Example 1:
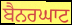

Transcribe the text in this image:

ਬੈਨਰਘਾਟ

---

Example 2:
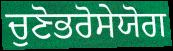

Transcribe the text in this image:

ਚੁਣੋਭਰੋਸੇਯੋਗ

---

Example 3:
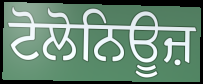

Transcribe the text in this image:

ਟੋਲੋਨਿਊਜ਼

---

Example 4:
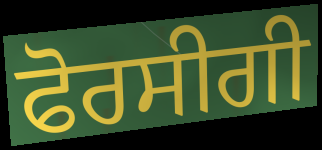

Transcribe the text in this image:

ਫੋਰਸੀਗੀ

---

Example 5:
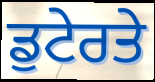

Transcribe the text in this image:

ਡੁਟੇਰਤੇ